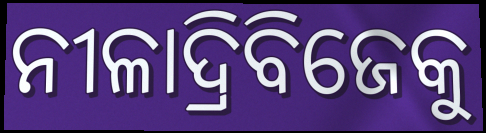
ନୀଳାଦ୍ରିବିଜେକୁ